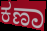
ಕಣಾ